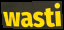
wasti